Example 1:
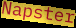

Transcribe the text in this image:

Napster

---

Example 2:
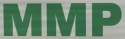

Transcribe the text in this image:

MMP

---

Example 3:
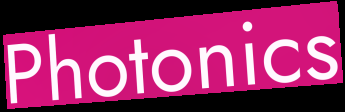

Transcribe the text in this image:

Photonics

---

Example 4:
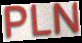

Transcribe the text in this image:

PLN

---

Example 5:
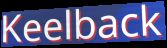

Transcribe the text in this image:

Keelback